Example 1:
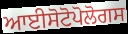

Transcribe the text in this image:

ਆਈਸੋਟੋਪੋਲੋਗਸ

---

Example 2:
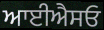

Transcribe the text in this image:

ਆਈਐਸਓ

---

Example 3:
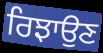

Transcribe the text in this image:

ਰਿਝਾਉਣ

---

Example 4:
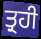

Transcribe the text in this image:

ਤ੍ਰਹੀ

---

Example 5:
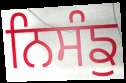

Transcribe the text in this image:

ਨਿਸੰਙੁ